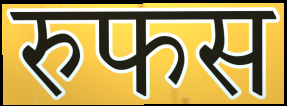
रुफस